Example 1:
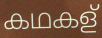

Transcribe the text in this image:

കഥകള്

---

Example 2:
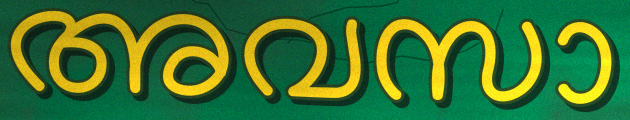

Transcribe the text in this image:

അവസാ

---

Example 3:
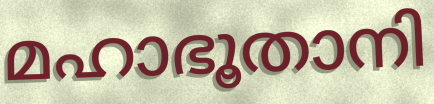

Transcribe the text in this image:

മഹാഭൂതാനി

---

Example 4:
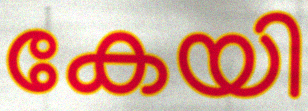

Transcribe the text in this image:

കേയി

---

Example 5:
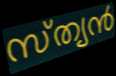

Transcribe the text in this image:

സ്‌ത്യൻ